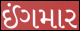
ઈંગમાર